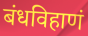
बंधविहाणं